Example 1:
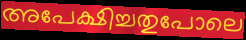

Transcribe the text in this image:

അപേക്ഷിച്ചതുപോലെ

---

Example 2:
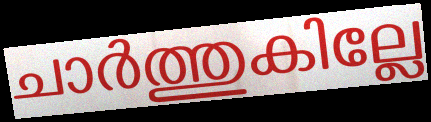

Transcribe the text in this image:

ചാർത്തുകില്ലേ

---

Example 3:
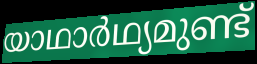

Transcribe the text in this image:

യാഥാർഥ്യമുണ്ട്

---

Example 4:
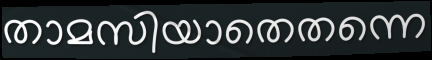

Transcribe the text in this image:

താമസിയാതെതന്നെ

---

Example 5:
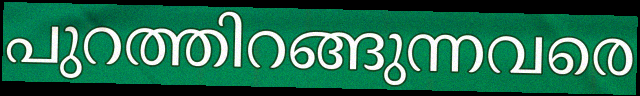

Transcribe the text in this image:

പുറത്തിറങ്ങുന്നവരെ